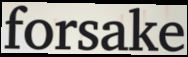
forsake